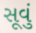
સૂવું